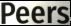
Peers